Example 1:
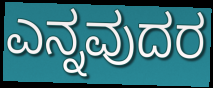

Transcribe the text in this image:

ಎನ್ನವುದರ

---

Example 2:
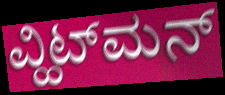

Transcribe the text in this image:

ವ್ಹಿಟ್‌ಮನ್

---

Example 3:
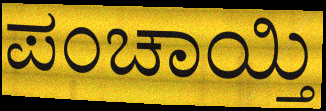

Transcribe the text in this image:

ಪಂಚಾಯ್ತಿ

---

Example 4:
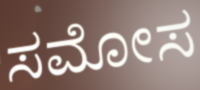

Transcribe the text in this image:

ಸಮೋಸ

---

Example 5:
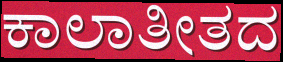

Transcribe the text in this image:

ಕಾಲಾತೀತದ